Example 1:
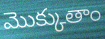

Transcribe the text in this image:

మొక్కుతాం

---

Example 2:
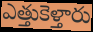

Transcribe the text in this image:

ఎత్తుకెళ్తారు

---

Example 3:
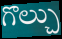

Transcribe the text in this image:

గొల్చు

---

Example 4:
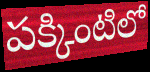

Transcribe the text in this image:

పక్కింటిలో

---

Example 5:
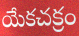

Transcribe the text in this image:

యేకచక్రం